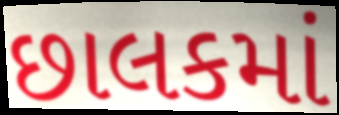
છાલકમાં